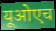
यूओएच